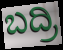
ಬದ್ರಿ